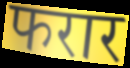
फरार